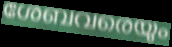
ശേബവരെയും